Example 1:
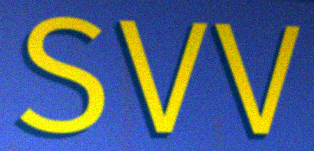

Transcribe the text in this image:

SVV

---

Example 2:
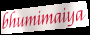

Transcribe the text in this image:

bhumimaiya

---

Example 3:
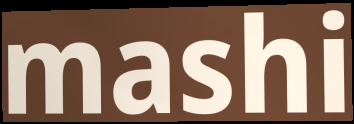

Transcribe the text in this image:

mashi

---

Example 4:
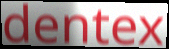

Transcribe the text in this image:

dentex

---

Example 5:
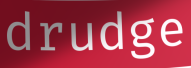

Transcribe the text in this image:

drudge